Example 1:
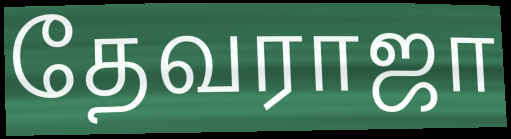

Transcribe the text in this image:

தேவராஜா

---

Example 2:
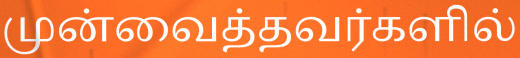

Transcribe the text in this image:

முன்வைத்தவர்களில்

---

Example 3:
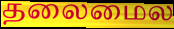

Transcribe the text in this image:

தலைமைல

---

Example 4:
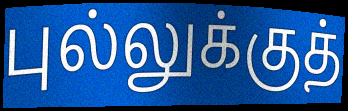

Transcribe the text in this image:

புல்லுக்குத்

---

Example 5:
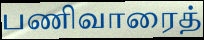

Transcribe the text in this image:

பணிவாரைத்